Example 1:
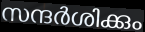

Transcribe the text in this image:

സന്ദർശിക്കും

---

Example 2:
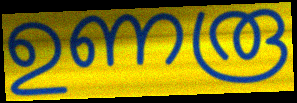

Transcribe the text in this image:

ഉണരൂ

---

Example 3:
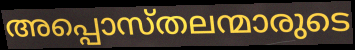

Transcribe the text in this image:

അപ്പൊസ്തലന്മാരുടെ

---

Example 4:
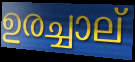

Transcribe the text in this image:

ഉരച്ചാല്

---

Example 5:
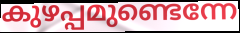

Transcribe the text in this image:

കുഴപ്പമുണ്ടെന്നേ